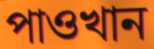
পাওখান